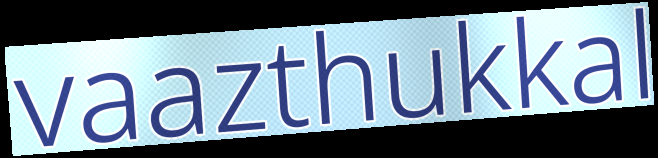
vaazthukkal